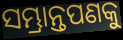
ସମ୍ଭ୍ରାନ୍ତପଣକୁ